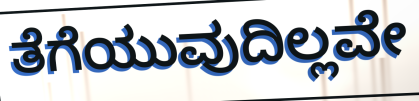
ತೆಗೆಯುವುದಿಲ್ಲವೇ